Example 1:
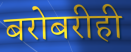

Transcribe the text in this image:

बरोबरीही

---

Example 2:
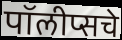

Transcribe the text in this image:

पॉलीप्सचे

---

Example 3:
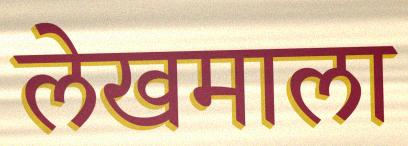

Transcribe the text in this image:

लेखमाला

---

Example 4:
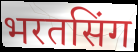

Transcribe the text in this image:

भरतसिंग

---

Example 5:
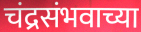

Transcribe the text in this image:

चंद्रसंभवाच्या